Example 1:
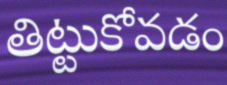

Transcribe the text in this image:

తిట్టుకోవడం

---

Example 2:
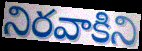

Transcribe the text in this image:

నిరవాకిని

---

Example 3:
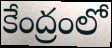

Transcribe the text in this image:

కేంద్రంలో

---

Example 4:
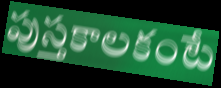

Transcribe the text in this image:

పుస్తకాలకంటే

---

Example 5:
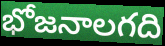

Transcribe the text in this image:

భోజనాలగది